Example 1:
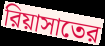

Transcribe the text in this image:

রিয়াসাতের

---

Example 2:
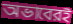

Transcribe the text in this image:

অভাবেরই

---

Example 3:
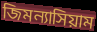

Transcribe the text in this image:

জিমন্যাসিয়াম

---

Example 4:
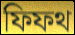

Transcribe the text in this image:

ফিফথ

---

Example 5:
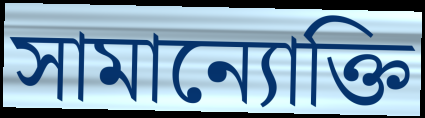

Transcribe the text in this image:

সামান্যোক্তি